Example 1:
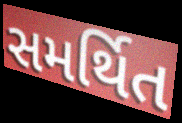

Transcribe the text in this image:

સમર્થિત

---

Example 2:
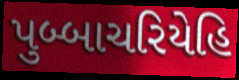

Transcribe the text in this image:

પુબ્બાચરિયેહિ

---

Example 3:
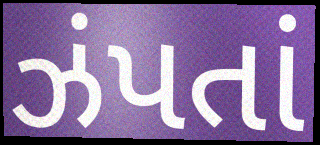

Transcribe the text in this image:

ઝંપતાં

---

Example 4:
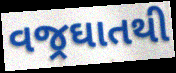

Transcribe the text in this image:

વજ્રઘાતથી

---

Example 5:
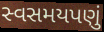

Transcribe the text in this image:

સ્વસમયપણું